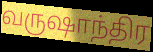
வருஷாந்திர